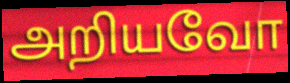
அறியவோ